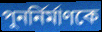
পুনর্নির্মাণকে